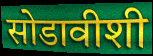
सोडावीशी